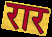
रार